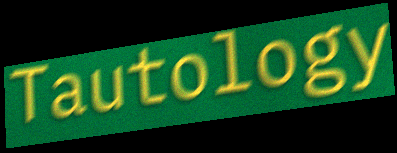
Tautology